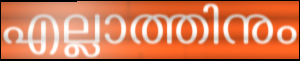
എല്ലാത്തിനും